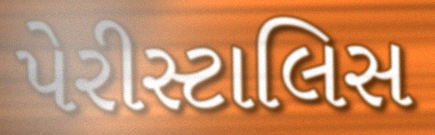
પેરીસ્ટાલિસ